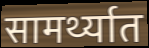
सामर्थ्यात